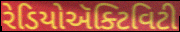
રેડિયોઍક્ટિવિટી